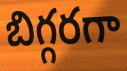
బిగ్గరగా